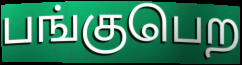
பங்குபெற